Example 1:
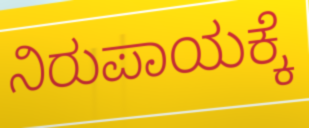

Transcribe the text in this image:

ನಿರುಪಾಯಕ್ಕೆ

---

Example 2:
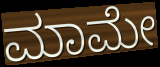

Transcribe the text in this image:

ಮಾಮೇ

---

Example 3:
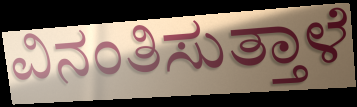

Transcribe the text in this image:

ವಿನಂತಿಸುತ್ತಾಳೆ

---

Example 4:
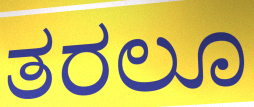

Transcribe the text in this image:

ತರಲೂ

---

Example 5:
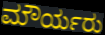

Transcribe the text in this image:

ಮೌರ್ಯರು